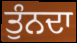
ਤੁੰਨਦਾ